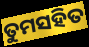
ତୁମସହିତ